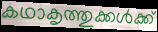
കഥാകൃത്തുക്കൾക്ക്